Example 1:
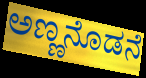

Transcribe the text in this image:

ಅಣ್ಣನೊಡನೆ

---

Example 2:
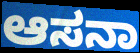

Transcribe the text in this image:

ಆಸನಾ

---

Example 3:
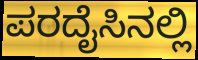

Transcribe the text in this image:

ಪರದೈಸಿನಲ್ಲಿ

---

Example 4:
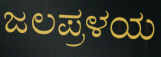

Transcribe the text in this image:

ಜಲಪ್ರಳಯ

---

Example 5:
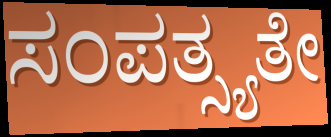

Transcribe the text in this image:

ಸಂಪತ್ಸ್ಯತೇ